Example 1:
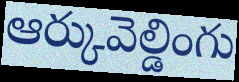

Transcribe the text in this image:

ఆర్కువెల్డింగు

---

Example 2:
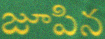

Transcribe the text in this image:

జూపిన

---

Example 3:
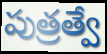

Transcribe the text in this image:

పుత్రత్వే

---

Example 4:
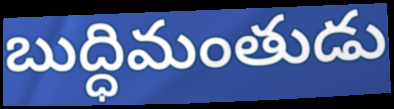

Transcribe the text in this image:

బుద్ధిమంతుడు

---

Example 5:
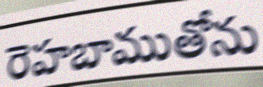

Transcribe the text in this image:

రెహబాముతోను